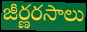
జీర్ణరసాలు